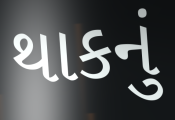
થાકનું